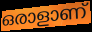
ഒരാളാണ്